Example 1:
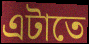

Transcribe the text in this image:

এটাতে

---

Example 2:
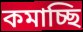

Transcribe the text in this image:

কমাচ্ছি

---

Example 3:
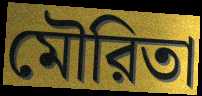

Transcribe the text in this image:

মৌরিতা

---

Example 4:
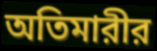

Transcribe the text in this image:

অতিমারীর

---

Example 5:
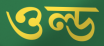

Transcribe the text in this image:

ওল্ড